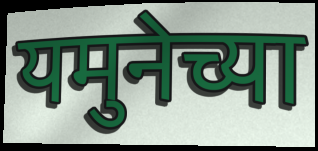
यमुनेच्या